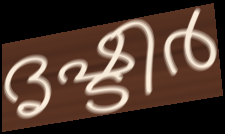
ദൃഷ്ടിർ